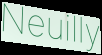
Neuilly